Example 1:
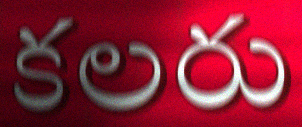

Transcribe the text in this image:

కలరు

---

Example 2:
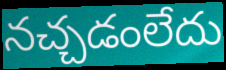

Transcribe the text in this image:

నచ్చడంలేదు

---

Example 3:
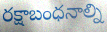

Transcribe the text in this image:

రక్షాబంధనాల్ని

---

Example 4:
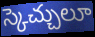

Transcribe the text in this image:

స్కెచ్చులూ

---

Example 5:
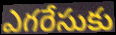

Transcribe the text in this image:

ఎగరేసుకు